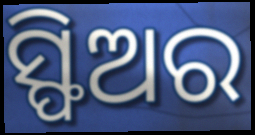
ସ୍ଫିଅର